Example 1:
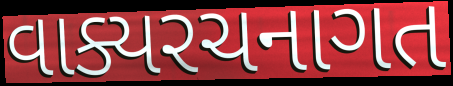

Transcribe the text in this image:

વાક્યરચનાગત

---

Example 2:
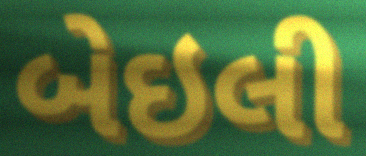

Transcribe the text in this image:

બેઇલી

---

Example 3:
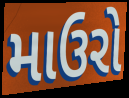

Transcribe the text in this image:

માઉરો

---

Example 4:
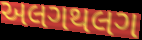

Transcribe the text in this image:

અલગથલગ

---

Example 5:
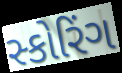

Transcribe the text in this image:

સ્કોરિંગ